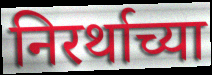
निरर्थाच्या